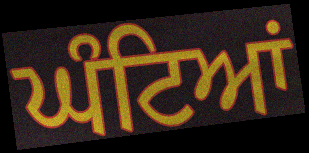
ਘੰਟਿਆਂ